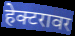
हेक्टरावर